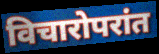
विचारोपरांत